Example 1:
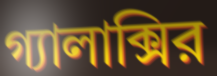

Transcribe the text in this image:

গ্যালাক্সির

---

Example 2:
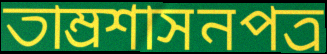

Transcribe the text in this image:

তাম্রশাসনপত্র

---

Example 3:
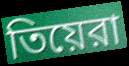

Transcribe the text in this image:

তিয়েরা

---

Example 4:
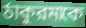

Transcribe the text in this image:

ঠাকুরমাকে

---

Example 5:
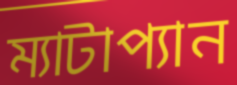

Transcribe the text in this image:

ম্যাটাপ্যান